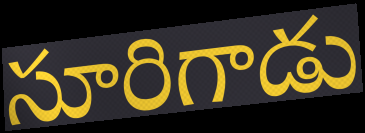
సూరిగాడు